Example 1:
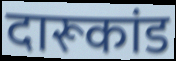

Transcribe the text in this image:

दारूकांड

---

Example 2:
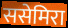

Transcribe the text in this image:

ससेमिरा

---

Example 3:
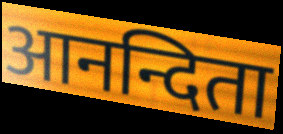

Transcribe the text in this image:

आनन्दिता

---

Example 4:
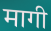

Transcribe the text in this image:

मागी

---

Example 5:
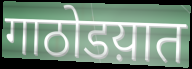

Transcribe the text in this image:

गाठोडय़ात